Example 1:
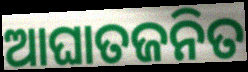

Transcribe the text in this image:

ଆଘାତଜନିତ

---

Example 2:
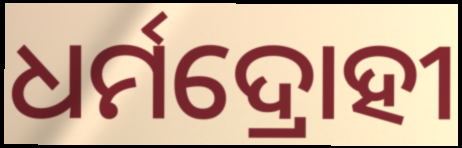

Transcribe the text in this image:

ଧର୍ମଦ୍ରୋହୀ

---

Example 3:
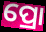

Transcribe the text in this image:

ପ୍ରୋ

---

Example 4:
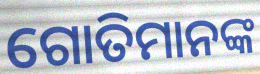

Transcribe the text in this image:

ଗୋତିମାନଙ୍କ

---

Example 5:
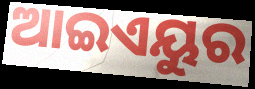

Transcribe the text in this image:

ଆଇଏୟୁର